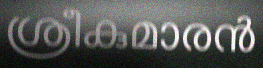
ശ്രീകുമാരൻ